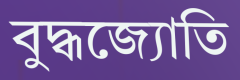
বুদ্ধজ্যোতি